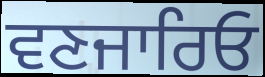
ਵਣਜਾਰਿਓ